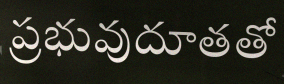
ప్రభువుదూతతో